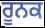
ਰੂਨਕ